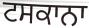
ਟਸਕਾਨਾ